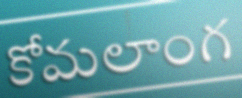
కోమలాంగ